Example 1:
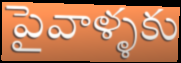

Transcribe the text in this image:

పైవాళ్ళకు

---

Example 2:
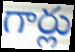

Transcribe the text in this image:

గార్లు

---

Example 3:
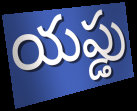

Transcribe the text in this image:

యప్డు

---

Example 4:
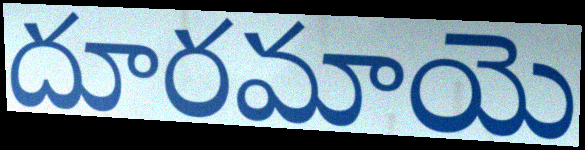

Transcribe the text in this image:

దూరమాయె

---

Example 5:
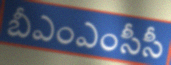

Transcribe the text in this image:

బీఎంఎంసీసీ